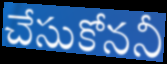
చేసుకోననీ